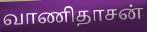
வாணிதாசன்